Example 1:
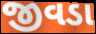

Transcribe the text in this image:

જીવડા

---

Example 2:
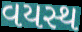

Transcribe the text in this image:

વયસ્થ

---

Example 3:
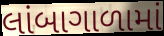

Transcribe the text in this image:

લાંબાગાળામાં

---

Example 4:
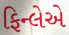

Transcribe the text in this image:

ફિન્લેએ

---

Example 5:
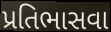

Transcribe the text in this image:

પ્રતિભાસવા